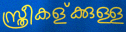
സ്ത്രീകള്ക്കുള്ള